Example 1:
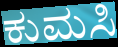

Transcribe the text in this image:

ಕುಮಸಿ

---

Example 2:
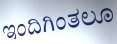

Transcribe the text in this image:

ಇಂದಿಗಿಂತಲೂ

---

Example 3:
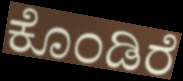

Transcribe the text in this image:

ಕೊಂಡಿರೆ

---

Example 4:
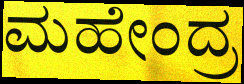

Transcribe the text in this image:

ಮಹೇಂದ್ರ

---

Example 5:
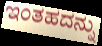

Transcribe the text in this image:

ಇಂತಹದನ್ನು